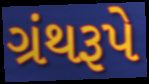
ગ્રંથરૂપે